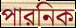
পারনিক